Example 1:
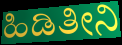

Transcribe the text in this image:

ಹಿಡಿತೀನಿ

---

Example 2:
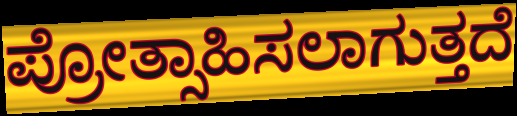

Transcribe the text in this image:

ಪ್ರೋತ್ಸಾಹಿಸಲಾಗುತ್ತದೆ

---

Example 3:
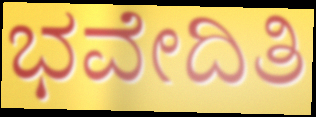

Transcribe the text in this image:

ಭವೇದಿತಿ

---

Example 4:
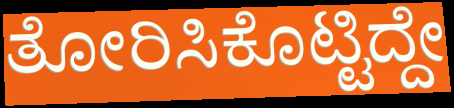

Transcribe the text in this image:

ತೋರಿಸಿಕೊಟ್ಟಿದ್ದೇ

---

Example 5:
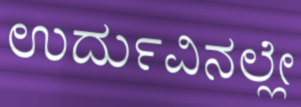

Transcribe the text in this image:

ಉರ್ದುವಿನಲ್ಲೇ